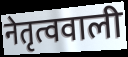
नेतृत्ववाली